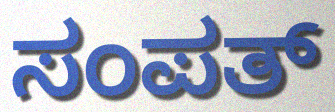
ಸಂಪತ್